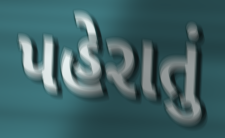
પહેરાતું